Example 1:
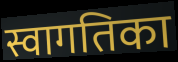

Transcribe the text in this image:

स्वागतिका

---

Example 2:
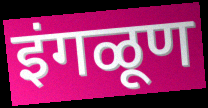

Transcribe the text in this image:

इंगळूण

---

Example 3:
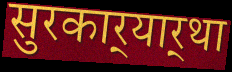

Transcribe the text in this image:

सुरकार्यार्था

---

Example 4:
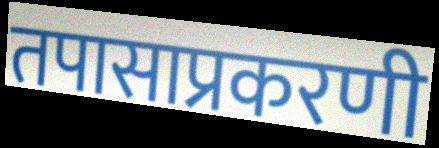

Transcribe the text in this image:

तपासाप्रकरणी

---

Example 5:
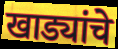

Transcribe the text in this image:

खाड्यांचे